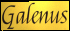
Galenus